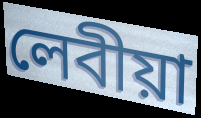
লেবীয়া